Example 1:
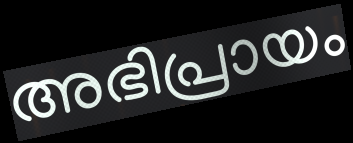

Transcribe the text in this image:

അഭിപ്രായം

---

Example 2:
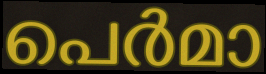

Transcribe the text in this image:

പെർമാ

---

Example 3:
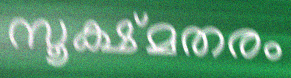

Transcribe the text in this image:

സൂക്ഷ്മതരം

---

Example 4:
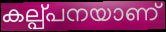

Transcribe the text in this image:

കല്പ്പനയാണ്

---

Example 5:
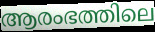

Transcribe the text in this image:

ആരംഭത്തിലെ